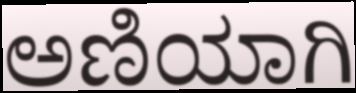
ಅಣಿಯಾಗಿ